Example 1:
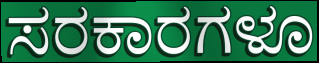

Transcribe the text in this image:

ಸರಕಾರಗಳೂ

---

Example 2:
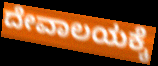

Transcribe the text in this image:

ದೇವಾಲಯಕ್ಕೆ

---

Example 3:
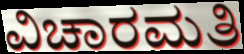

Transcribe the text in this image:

ವಿಚಾರಮತಿ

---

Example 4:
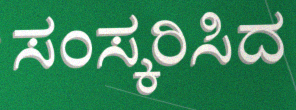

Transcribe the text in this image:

ಸಂಸ್ಕರಿಸಿದ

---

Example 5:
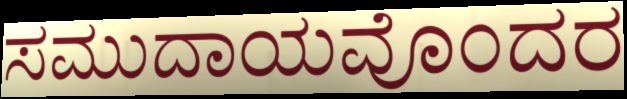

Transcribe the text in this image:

ಸಮುದಾಯವೊಂದರ